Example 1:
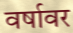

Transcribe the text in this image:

वर्षावर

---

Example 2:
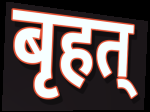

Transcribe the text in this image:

बृहत्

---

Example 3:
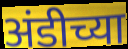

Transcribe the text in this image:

अंडीच्या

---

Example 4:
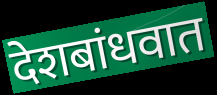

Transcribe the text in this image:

देशबांधवात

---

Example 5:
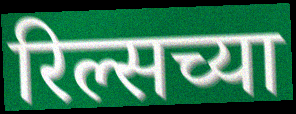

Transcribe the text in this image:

रिल्सच्या